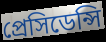
প্রেসিডেন্সি